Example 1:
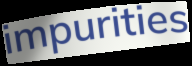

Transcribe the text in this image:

impurities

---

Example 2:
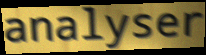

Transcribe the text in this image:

analyser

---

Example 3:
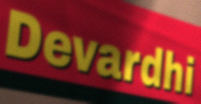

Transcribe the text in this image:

Devardhi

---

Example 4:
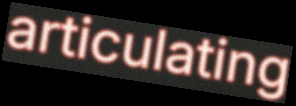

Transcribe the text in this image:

articulating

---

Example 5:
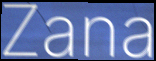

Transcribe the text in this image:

Zana